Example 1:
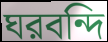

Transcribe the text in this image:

ঘরবন্দি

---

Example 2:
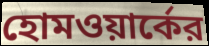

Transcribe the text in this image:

হোমওয়ার্কের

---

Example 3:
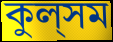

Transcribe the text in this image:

কুল্‌সম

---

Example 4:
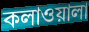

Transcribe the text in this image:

কলাওয়ালা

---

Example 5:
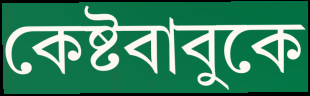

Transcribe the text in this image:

কেষ্টবাবুকে